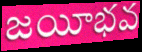
జయీభవ